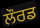
ਲੌਰਡ